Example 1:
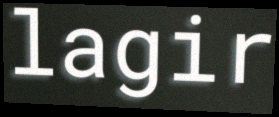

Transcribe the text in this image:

lagir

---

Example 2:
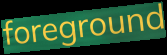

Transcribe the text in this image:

foreground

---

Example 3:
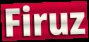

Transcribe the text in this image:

Firuz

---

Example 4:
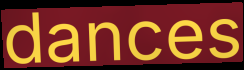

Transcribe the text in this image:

dances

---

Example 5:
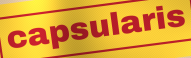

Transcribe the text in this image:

capsularis